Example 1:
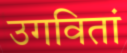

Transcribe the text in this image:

उगवितां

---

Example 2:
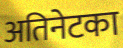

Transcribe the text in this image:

अतिनेटका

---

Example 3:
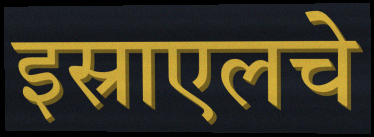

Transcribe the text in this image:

इस्राएलचे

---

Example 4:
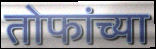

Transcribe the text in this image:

तोफांच्या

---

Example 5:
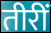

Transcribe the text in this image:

तीरीं